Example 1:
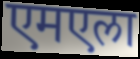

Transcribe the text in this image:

एमएला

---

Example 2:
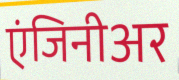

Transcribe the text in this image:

एंजिनीअर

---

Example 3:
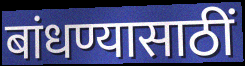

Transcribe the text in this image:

बांधण्यासाठीं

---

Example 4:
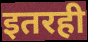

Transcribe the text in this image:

इतरही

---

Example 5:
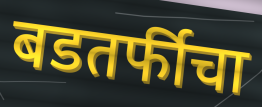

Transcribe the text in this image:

बडतर्फीचा